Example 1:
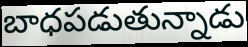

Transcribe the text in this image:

బాధపడుతున్నాడు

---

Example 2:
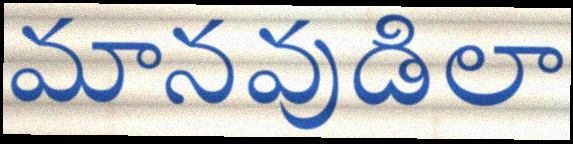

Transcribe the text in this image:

మానవుడిలా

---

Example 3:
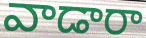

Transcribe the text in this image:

వాడారా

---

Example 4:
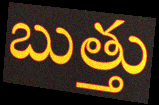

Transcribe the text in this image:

బుత్తు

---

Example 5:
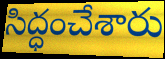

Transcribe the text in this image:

సిద్ధంచేశారు